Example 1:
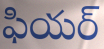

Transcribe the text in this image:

ఫియర్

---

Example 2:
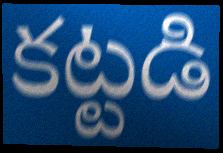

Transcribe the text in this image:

కట్టడి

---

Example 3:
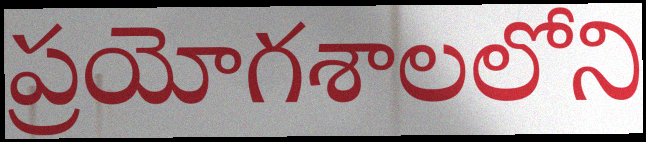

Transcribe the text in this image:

ప్రయోగశాలలోని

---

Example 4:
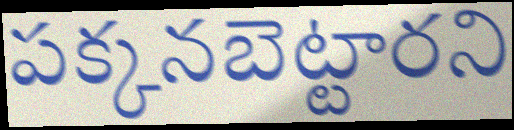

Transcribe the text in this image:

పక్కనబెట్టారని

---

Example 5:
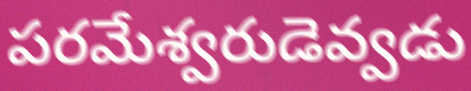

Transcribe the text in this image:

పరమేశ్వరుడెవ్వడు